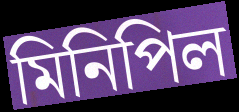
মিনিপিল